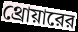
থ্রোয়ারের